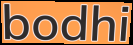
bodhi